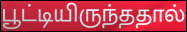
பூட்டியிருந்ததால்